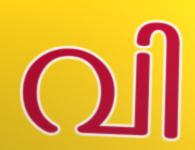
വി